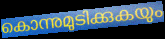
കൊന്നുമുടിക്കുകയും